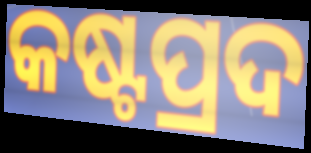
କଷ୍ଟପ୍ରଦ